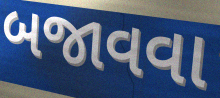
બજાવવા